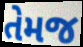
તેમજ